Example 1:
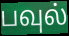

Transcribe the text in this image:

பவுல்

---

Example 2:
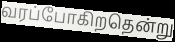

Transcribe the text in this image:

வரப்போகிறதென்று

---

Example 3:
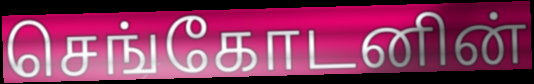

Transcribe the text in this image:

செங்கோடனின்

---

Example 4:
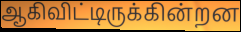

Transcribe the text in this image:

ஆகிவிட்டிருக்கின்றன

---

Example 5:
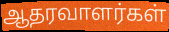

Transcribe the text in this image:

ஆதரவாளர்கள்